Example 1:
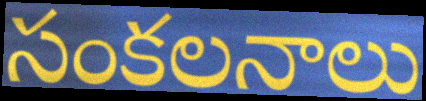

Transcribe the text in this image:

సంకలనాలు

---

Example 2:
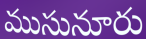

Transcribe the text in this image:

ముసునూరు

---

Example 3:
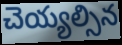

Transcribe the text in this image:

చెయ్యల్సిన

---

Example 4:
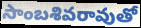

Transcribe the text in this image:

సాంబశివరావుతో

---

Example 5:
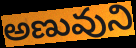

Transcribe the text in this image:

అణువుని